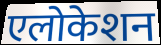
एलोकेशन